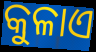
କୁଳାଏ